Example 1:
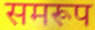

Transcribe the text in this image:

समरूप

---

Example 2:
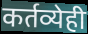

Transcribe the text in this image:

कर्तव्येही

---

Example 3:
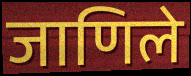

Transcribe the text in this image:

जाणिले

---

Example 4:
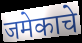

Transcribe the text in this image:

जमेकाचे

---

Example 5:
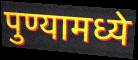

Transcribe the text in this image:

पुण्यामध्ये